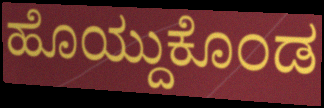
ಹೊಯ್ದುಕೊಂಡ